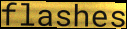
flashes